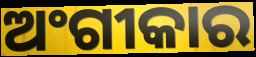
ଅଂଗୀକାର